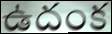
ఉదంక